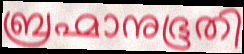
ബ്രഹ്മാനുഭൂതി